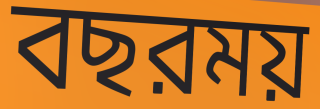
বছরময়